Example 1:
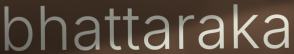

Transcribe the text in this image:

bhattaraka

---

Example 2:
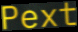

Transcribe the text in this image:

Pext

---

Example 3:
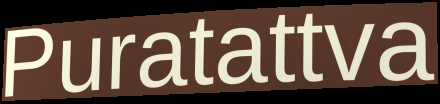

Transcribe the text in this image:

Puratattva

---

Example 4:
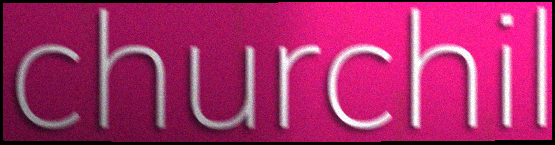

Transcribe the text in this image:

churchil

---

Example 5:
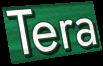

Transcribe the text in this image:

Tera